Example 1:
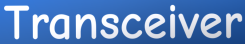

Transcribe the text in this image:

Transceiver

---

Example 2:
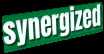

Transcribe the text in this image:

synergized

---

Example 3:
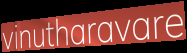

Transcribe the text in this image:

vinutharavare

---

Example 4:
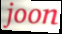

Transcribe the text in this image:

joon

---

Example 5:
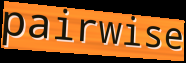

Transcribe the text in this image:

pairwise